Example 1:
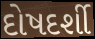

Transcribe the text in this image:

દોષદર્શી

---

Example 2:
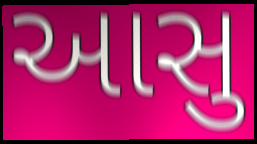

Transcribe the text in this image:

આસુ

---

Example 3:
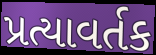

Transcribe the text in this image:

પ્રત્યાવર્તક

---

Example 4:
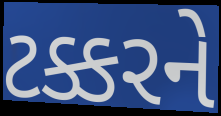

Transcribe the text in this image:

ટક્કરને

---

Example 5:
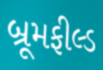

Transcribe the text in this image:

બ્રૂમફીલ્ડ